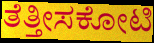
ತೆತ್ತೀಸಕೋಟಿ